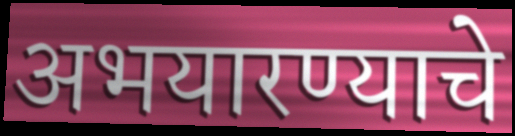
अभयारण्याचे